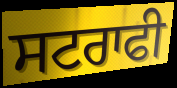
ਸਟਰਾਫੀ